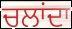
ਚਲਾਂਦਾ